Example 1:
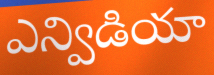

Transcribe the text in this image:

ఎన్విడియా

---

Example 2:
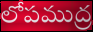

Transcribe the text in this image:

లోపముద్ర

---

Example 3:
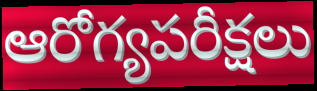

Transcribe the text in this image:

ఆరోగ్యపరీక్షలు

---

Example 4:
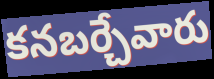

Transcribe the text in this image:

కనబర్చేవారు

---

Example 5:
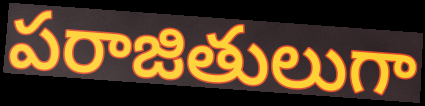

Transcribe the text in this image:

పరాజితులుగా